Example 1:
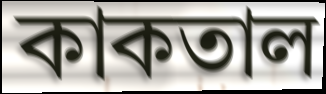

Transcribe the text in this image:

কাকতাল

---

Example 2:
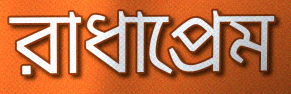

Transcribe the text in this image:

রাধাপ্রেম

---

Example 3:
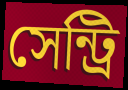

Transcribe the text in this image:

সেন্ট্রি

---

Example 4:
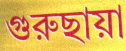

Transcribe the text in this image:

গুরুছায়া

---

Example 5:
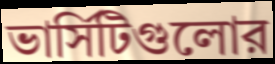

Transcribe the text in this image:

ভার্সিটিগুলোর